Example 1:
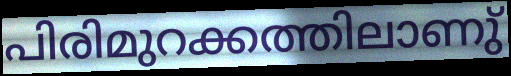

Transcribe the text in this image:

പിരിമുറക്കത്തിലാണു്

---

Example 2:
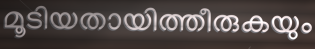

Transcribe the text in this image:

മൂടിയതായിത്തീരുകയും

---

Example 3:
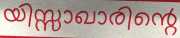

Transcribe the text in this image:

യിസ്സാഖാരിന്റെ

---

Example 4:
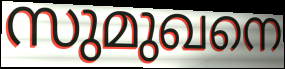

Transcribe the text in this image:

സുമുഖനെ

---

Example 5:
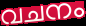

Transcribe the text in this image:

വചനം